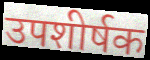
उपशीर्षक